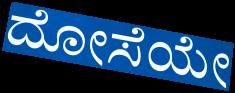
ದೋಸೆಯೇ